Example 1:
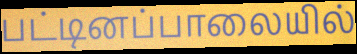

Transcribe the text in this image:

பட்டினப்பாலையில்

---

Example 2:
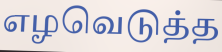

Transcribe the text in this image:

எழவெடுத்த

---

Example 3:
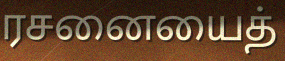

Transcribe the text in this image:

ரசனையைத்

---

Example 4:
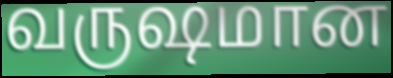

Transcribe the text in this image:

வருஷமான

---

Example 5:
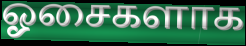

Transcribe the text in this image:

ஓசைகளாக